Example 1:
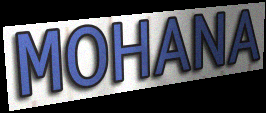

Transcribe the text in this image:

MOHANA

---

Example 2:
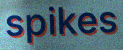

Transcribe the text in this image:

spikes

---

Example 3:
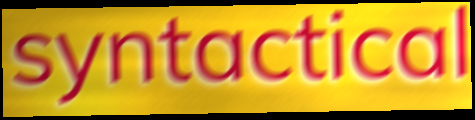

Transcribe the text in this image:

syntactical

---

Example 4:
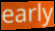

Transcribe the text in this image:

early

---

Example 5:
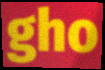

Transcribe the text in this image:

gho